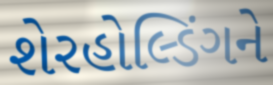
શેરહોલ્ડિંગને